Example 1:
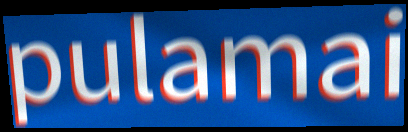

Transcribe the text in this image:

pulamai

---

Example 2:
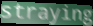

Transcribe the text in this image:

straying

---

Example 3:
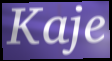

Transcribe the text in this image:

Kaje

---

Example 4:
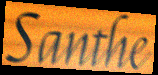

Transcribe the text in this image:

Santhe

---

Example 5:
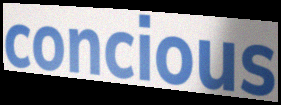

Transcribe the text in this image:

concious